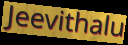
Jeevithalu